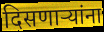
दिसणाऱ्यांना